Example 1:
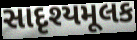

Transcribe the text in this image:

સાદૃશ્યમૂલક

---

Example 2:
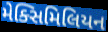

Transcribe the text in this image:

મેક્સિમિલિયન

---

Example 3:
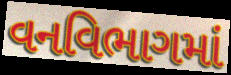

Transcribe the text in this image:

વનવિભાગમાં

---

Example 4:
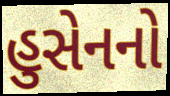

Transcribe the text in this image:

હુસેનનો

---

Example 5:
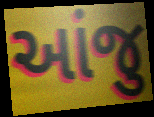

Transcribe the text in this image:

આંજુ